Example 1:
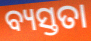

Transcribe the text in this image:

ବ୍ୟସ୍ତତା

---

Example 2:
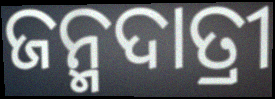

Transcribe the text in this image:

ଜନ୍ମଦାତ୍ରୀ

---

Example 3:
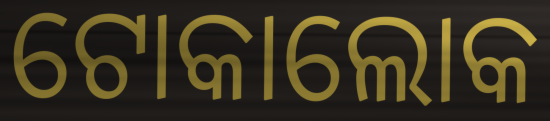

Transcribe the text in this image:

ଟୋକାଲୋକ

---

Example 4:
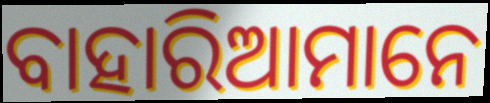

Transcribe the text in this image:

ବାହାରିଆମାନେ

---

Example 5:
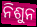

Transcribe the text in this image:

ନିଶୁନ